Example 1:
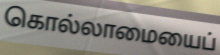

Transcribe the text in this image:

கொல்லாமையைப்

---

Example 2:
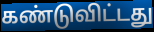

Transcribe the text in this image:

கண்டுவிட்டது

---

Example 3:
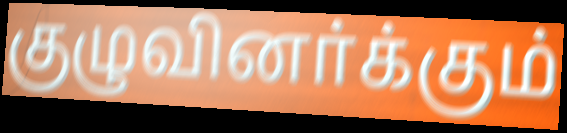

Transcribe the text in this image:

குழுவினர்க்கும்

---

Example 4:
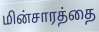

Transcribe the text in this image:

மின்சாரத்தை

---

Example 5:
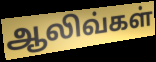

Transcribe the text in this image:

ஆலிவ்கள்